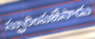
స్ఫురింపజేసాడు